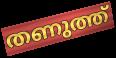
തണുത്ത്